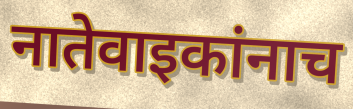
नातेवाइकांनाच